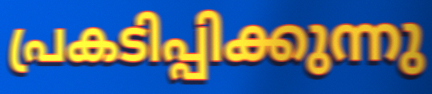
പ്രകടിപ്പിക്കുന്നു